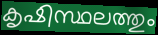
കൃഷിസ്ഥലത്തും